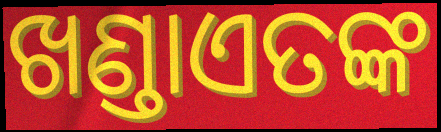
ଖଣ୍ଡାଏତଙ୍କ